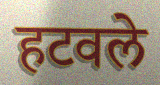
हटवले